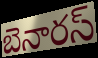
బెనారస్